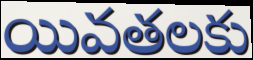
యివతలకు